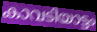
കാവടിയാട്ടം